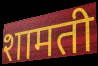
शामती